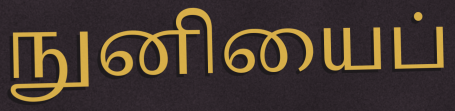
நுனியைப்